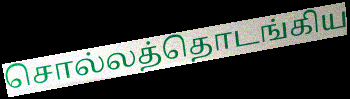
சொல்லத்தொடங்கிய